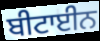
ਬੀਟਾਈਨ